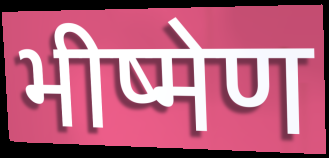
भीष्मेण